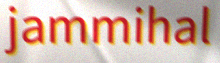
jammihal